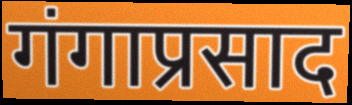
गंगाप्रसाद